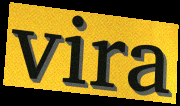
vira